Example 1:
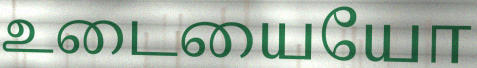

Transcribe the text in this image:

உடையையோ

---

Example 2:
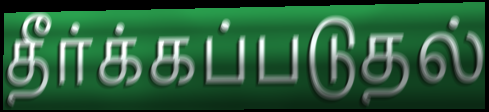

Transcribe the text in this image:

தீர்க்கப்படுதல்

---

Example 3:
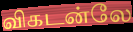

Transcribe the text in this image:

விகடன்லே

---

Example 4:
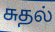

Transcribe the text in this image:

சுதல்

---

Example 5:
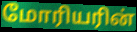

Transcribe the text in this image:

மோரியரின்